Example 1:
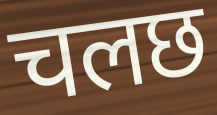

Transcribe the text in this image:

चलछ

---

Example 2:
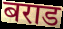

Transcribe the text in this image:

बराड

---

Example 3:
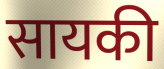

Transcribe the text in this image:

सायकी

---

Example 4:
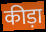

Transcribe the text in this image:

कीड़ा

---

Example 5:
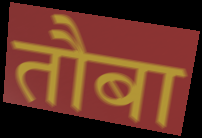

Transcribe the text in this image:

तौबा